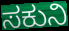
ಸಕುನಿ